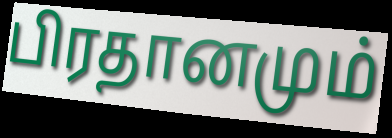
பிரதானமும்